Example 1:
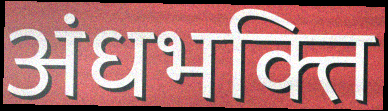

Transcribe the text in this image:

अंधभक्ति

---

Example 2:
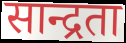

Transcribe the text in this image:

सान्द्रता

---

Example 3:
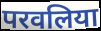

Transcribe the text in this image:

परवलिया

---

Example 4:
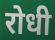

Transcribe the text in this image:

रोधी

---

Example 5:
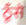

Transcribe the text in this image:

ठूँसे